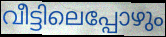
വീട്ടിലെപ്പോഴും